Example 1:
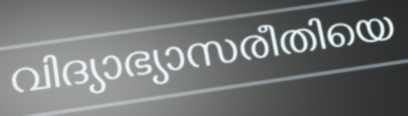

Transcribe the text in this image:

വിദ്യാഭ്യാസരീതിയെ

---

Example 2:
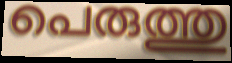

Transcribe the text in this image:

പെരുത്തു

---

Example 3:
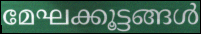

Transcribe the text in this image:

മേഘക്കൂട്ടങ്ങൾ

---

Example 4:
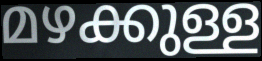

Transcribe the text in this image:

മഴക്കുള്ള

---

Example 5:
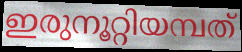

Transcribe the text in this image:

ഇരുനൂറ്റിയമ്പത്